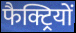
फैक्ट्रियों